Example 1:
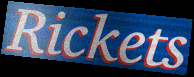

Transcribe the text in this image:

Rickets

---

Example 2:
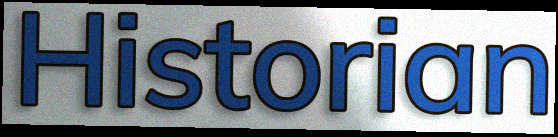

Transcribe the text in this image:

Historian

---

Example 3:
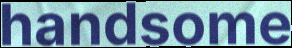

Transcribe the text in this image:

handsome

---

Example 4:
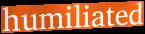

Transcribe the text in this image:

humiliated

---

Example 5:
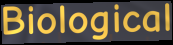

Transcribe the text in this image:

Biological